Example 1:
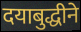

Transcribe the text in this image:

दयाबुद्धीने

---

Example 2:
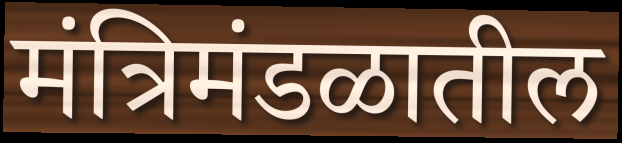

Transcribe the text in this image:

मंत्रिमंडळातील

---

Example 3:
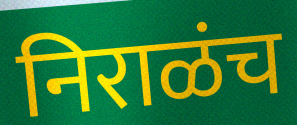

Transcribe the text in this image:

निराळंच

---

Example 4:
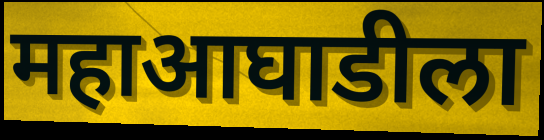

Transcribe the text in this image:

महाआघाडीला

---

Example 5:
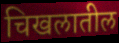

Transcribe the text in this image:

चिखलातील